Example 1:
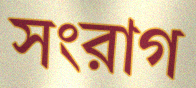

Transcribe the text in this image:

সংরাগ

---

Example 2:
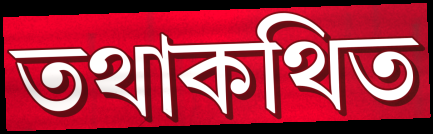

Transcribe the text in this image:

তথাকথিত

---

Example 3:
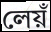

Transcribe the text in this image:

লেয়ঁ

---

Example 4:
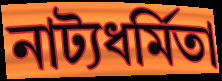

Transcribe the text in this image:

নাট্যধর্মিতা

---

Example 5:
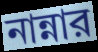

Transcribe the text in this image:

নান্নার